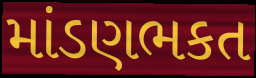
માંડણભકત